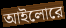
আইলোরে